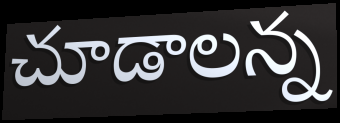
చూడాలన్న